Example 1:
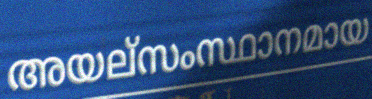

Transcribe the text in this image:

അയല്സംസ്ഥാനമായ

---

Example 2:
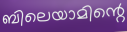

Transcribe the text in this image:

ബിലെയാമിന്റെ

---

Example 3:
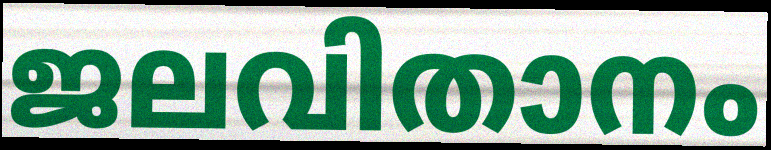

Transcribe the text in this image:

ജലവിതാനം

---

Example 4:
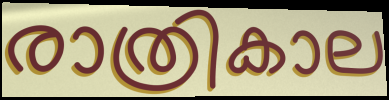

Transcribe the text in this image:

രാത്രികാല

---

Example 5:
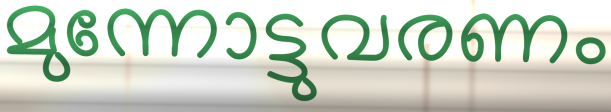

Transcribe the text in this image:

മുന്നോട്ടുവരണം